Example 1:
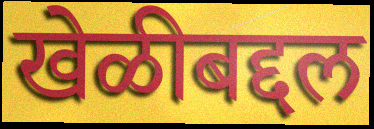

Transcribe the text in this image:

खेळीबद्दल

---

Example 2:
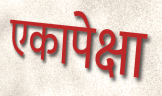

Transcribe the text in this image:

एकापेक्षा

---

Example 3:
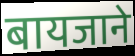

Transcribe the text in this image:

बायजाने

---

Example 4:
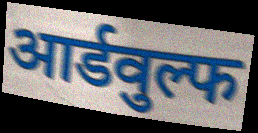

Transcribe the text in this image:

आर्डवुल्फ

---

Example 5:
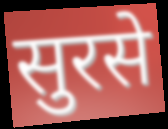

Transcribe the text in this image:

सुरसे